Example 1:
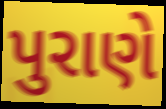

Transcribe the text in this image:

પુરાણે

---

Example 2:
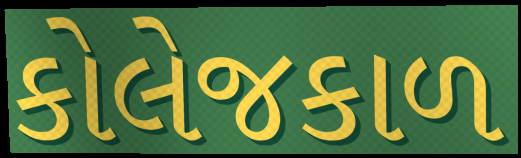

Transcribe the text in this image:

કોલેજકાળ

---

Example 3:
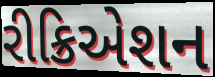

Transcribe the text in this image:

રીક્રિએશન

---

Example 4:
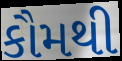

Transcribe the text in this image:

કૌમથી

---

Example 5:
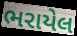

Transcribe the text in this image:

ભરાયેલ